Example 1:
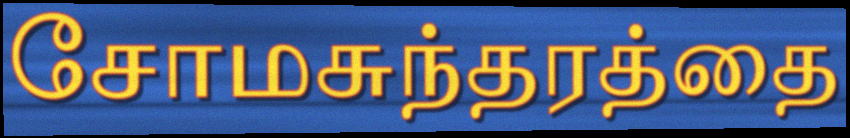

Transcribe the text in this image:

சோமசுந்தரத்தை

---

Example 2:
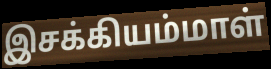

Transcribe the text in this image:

இசக்கியம்மாள்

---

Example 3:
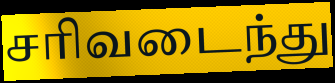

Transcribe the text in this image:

சரிவடைந்து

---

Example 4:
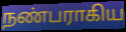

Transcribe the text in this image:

நண்பராகிய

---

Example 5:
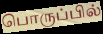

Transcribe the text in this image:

பொருப்பில்